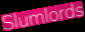
Slumlords